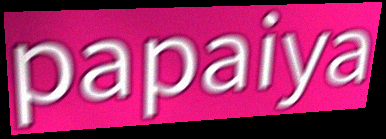
papaiya